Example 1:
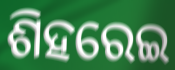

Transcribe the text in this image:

ଶିହରେଇ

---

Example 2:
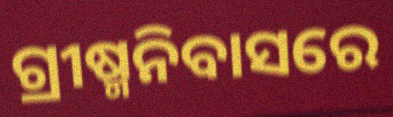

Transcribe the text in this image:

ଗ୍ରୀଷ୍ମନିବାସରେ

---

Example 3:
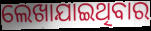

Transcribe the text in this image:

ଲେଖାଯାଇଥିବାର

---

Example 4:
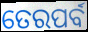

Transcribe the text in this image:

ତେରପର୍ବ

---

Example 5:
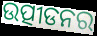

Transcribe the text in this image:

ଉତ୍ପୀଡନର